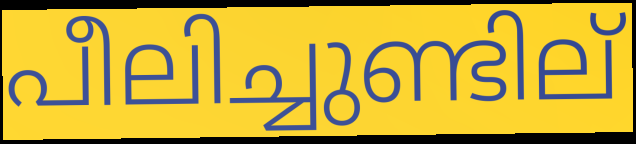
പീലിച്ചുണ്ടില്